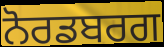
ਨੋਰਡਬਰਗ